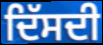
ਦਿੱਸਦੀ